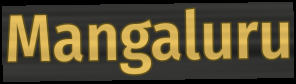
Mangaluru